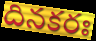
దినకరః